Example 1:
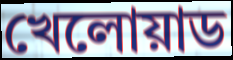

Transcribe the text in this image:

খেলোয়াড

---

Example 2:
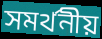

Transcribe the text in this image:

সমর্থনীয়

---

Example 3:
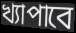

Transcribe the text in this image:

খ্যাপাবে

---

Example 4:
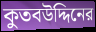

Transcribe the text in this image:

কুতবউদ্দিনের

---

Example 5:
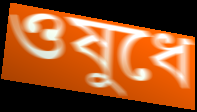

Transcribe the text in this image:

ওষুধে